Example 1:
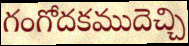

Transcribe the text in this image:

గంగోదకముదెచ్చి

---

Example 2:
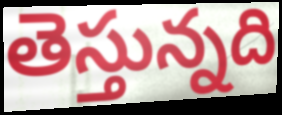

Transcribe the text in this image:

తెస్తున్నది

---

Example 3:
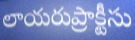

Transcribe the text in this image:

లాయరుప్రాక్టీసు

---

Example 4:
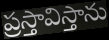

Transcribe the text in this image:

ప్రస్తావిస్తాను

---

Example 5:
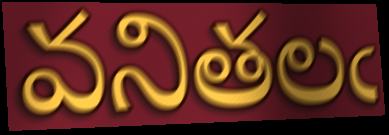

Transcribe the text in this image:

వనితలఁ